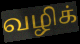
வழிக்